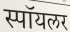
स्पॉयलर